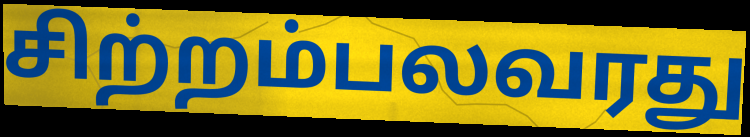
சிற்றம்பலவரது